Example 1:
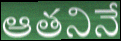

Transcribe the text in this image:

ఆతనినే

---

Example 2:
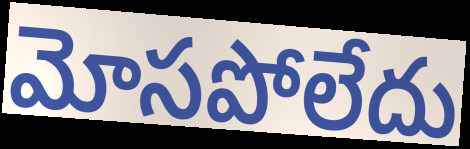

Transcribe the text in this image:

మోసపోలేదు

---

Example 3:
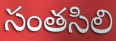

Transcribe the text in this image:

సంతసిలి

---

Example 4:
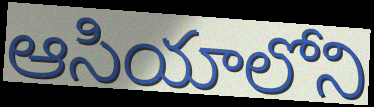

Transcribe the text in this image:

ఆసియాలోని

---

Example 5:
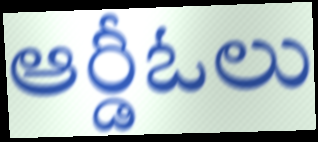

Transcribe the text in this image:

ఆర్డీఓలు